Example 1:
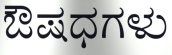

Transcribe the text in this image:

ಔಷಧಗಳು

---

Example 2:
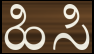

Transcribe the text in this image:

ಹಿಸಿ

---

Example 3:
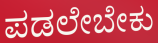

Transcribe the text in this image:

ಪಡಲೇಬೇಕು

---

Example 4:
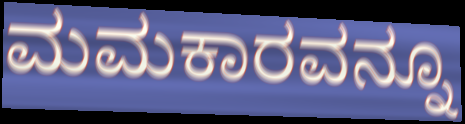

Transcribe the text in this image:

ಮಮಕಾರವನ್ನೂ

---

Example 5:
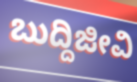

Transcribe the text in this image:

ಬುದ್ದಿಜೀವಿ